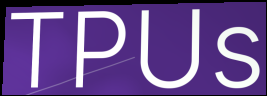
TPUs